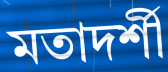
মতাদর্শী